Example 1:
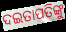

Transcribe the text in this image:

ଦଇତାପତିଙ୍କୁ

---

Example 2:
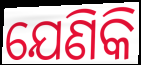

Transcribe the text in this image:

ଯେଣିକି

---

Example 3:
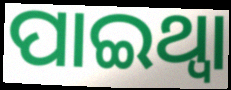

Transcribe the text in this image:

ପାଇଥ୍ବା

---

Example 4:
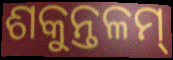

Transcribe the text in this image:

ଶକୁନ୍ତଳମ୍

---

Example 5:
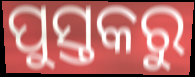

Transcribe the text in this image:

ପୁସ୍ତକରୁ